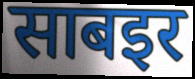
साबइर